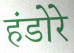
हंडोरे